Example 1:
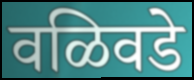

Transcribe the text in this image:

वळिवडे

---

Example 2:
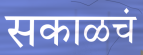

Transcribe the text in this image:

सकाळचं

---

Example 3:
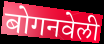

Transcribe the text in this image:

बोगनवेली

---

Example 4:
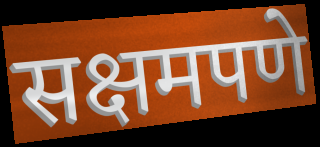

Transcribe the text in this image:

सक्षमपणे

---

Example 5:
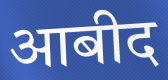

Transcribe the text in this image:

आबीद